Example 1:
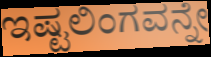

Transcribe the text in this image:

ಇಷ್ಟಲಿಂಗವನ್ನೇ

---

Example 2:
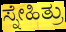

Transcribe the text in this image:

ಸ್ನೇಹಿತ್ರು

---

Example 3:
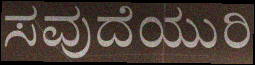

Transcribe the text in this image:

ಸವುದೆಯುರಿ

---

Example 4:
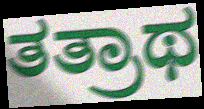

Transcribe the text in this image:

ತತ್ರಾಥ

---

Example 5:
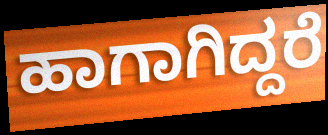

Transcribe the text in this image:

ಹಾಗಾಗಿದ್ದರೆ